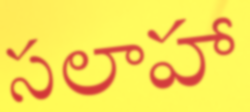
సలాహా